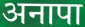
अनापा